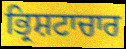
ਭ੍ਰਿਸ਼ਟਾਚਾਰ